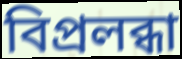
বিপ্রলব্ধা